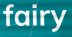
fairy